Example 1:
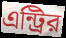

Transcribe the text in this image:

এন্ট্রির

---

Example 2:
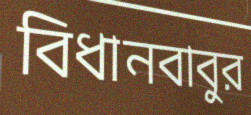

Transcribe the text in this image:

বিধানবাবুর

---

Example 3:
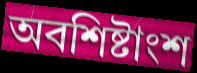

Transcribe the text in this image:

অবশিষ্টাংশ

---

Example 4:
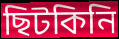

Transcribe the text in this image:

ছিটকিনি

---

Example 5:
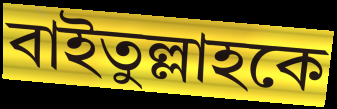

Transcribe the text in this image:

বাইতুল্লাহকে